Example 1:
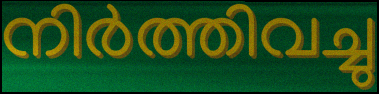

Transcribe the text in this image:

നിർത്തിവച്ചു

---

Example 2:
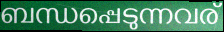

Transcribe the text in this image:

ബന്ധപ്പെടുന്നവര്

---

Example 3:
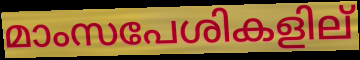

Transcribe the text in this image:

മാംസപേശികളില്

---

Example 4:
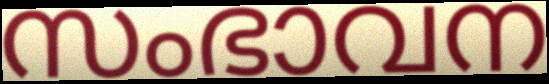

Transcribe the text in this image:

സംഭാവന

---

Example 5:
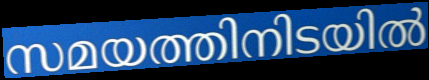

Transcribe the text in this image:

സമയത്തിനിടയിൽ